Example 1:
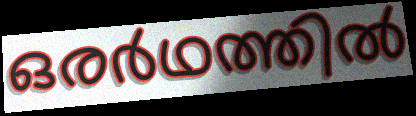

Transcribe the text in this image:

ഒരർഥത്തിൽ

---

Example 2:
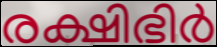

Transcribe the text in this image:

രക്ഷിഭിർ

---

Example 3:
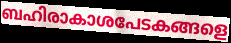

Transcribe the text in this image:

ബഹിരാകാശപേടകങ്ങളെ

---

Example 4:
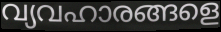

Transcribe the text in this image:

വ്യവഹാരങ്ങളെ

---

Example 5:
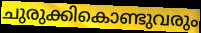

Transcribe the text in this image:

ചുരുക്കികൊണ്ടുവരും